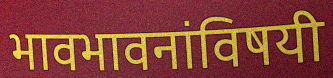
भावभावनांविषयी